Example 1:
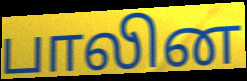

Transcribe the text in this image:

பாலின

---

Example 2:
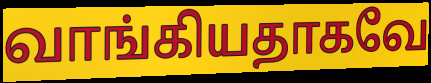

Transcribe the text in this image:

வாங்கியதாகவே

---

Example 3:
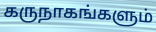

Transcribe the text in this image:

கருநாகங்களும்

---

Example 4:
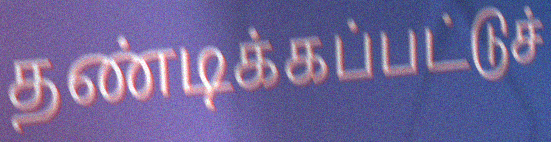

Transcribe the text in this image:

தண்டிக்கப்பட்டுச்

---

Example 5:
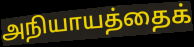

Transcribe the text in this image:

அநியாயத்தைக்